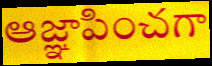
ఆజ్ఞాపించగా